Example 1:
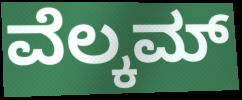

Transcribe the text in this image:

ವೆಲ್ಕಮ್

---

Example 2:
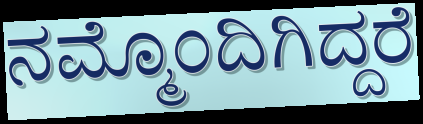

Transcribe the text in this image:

ನಮ್ಮೊಂದಿಗಿದ್ದರೆ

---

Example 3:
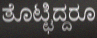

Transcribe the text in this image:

ತೊಟ್ಟಿದ್ದರೂ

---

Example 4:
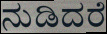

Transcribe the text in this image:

ನುಡಿದರೆ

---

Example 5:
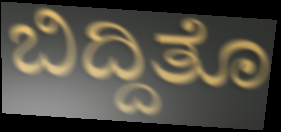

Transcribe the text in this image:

ಬಿದ್ದಿತೊ